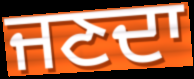
ਜਣਦਾ